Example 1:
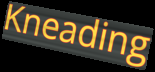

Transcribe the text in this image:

Kneading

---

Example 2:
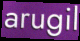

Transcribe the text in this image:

arugil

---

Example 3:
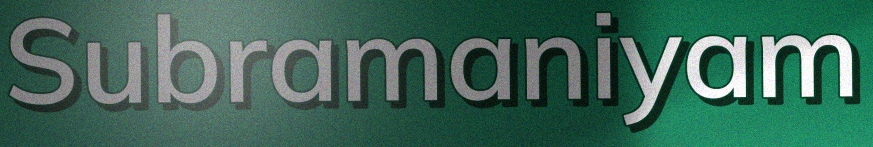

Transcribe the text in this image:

Subramaniyam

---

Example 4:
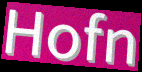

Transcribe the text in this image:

Hofn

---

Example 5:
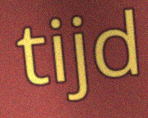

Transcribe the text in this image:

tijd